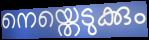
നെയ്തെടുക്കും